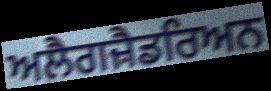
ਅਲੈਗਜ਼ੈਡਰਿਅਨ